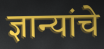
ज्ञान्यांचे